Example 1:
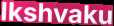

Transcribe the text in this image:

Ikshvaku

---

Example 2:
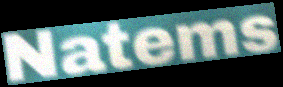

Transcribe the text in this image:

Natems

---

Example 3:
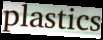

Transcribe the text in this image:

plastics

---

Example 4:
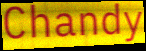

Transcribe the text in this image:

Chandy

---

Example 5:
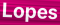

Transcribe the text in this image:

Lopes